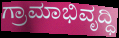
ಗ್ರಾಮಾಭಿವೃದ್ಧಿ